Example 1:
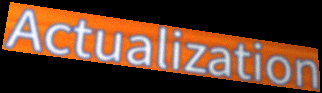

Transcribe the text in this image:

Actualization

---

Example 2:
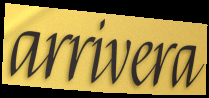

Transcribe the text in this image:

arrivera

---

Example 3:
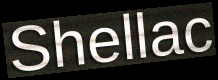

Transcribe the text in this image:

Shellac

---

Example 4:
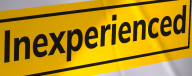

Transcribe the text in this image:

Inexperienced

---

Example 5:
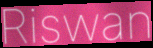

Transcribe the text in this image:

Riswan